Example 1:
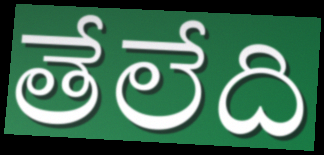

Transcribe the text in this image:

తేలేది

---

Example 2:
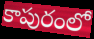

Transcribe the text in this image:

కాపురంలో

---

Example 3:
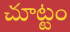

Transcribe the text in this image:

చూట్టం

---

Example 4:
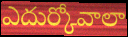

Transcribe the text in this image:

ఎదుర్కోవాలా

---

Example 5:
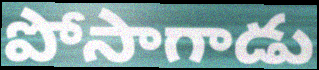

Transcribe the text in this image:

పోసాగాడు